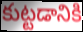
కుట్టడానికి